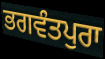
ਭਗਵੰਤਪੁਰਾ